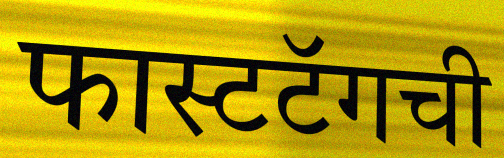
फास्टटॅगची